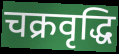
चक्रवृद्धि